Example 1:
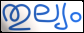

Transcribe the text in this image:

തുല്യം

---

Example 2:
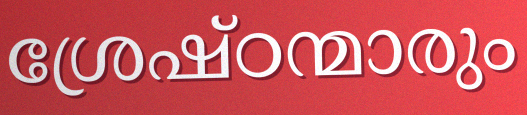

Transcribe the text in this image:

ശ്രേഷ്ഠന്മാരും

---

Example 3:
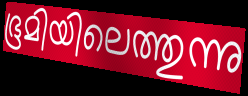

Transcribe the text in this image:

ഭൂമിയിലെത്തുന്നു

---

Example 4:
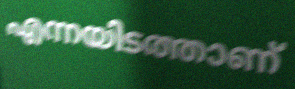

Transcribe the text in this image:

എന്നയിടത്താണ്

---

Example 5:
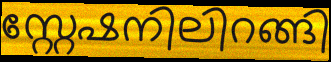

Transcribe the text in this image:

സ്റ്റേഷനിലിറങ്ങി